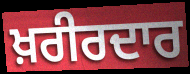
ਖ਼ਰੀਰਦਾਰ